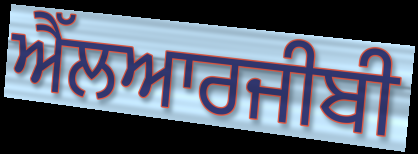
ਐੱਲਆਰਜੀਬੀ